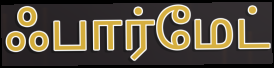
ஃபார்மேட்